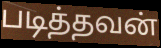
படித்தவன்